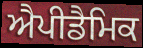
ਐਪੀਡੈਮਿਕ